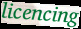
licencing